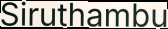
Siruthambu